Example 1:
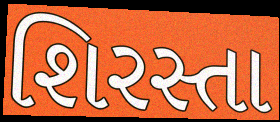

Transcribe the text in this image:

શિરસ્તા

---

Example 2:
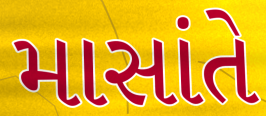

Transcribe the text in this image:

માસાંતે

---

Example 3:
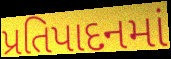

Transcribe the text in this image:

પ્રતિપાદનમાં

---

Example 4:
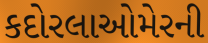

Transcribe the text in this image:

કદોરલાઓમેરની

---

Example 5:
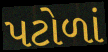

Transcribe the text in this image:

પટોળાં